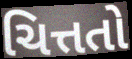
ચિત્તતો